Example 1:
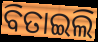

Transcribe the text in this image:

ବିତାଇଲି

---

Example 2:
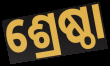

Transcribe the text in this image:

ଶ୍ରେଷ୍ଠା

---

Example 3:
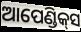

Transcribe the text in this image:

ଆପେଣ୍ଡିକ୍‌ସ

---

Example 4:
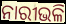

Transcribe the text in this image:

ନାରୀଭଳି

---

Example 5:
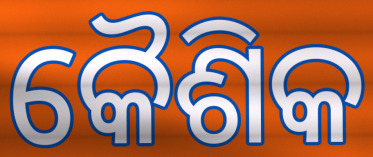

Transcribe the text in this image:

କୈଶିକ